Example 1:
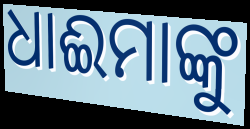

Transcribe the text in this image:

ଧାଈମାଙ୍କୁ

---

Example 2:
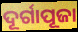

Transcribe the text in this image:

ଦୂର୍ଗାପୂଜା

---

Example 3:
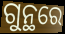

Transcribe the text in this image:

ଗୁନ୍ଥରେ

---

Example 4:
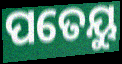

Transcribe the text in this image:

ପତେୟୁ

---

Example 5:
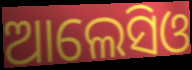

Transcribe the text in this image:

ଆଲେସିଓ